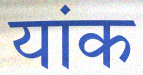
यांक